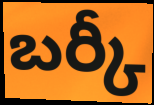
బర్కీ